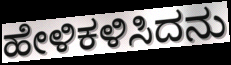
ಹೇಳಿಕಳಿಸಿದನು